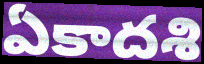
ఏకాదశి